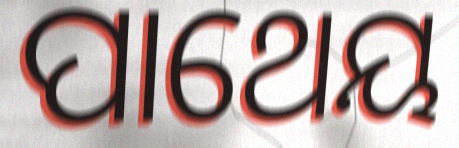
ପାଥେୟ